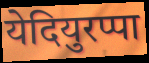
येदियुरप्पा